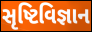
સૃષ્ટિવિજ્ઞાન